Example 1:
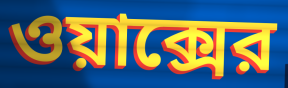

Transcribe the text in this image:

ওয়াক্সের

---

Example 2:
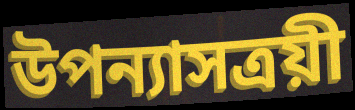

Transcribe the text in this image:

উপন্যাসত্রয়ী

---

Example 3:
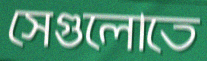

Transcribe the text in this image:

সেগুলোতে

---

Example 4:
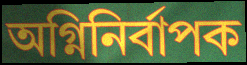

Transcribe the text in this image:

অগ্নিনির্বাপক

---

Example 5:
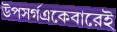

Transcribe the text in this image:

উপসর্গএকেবারেই